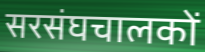
सरसंघचालकों